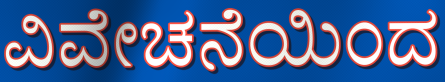
ವಿವೇಚನೆಯಿಂದ